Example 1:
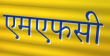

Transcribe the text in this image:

एमएफसी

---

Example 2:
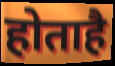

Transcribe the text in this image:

होताहै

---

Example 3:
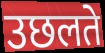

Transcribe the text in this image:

उछलते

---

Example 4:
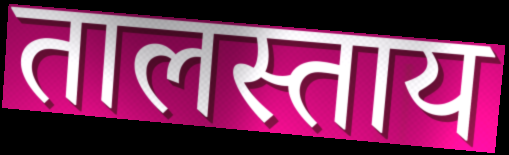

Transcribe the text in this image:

तालस्ताय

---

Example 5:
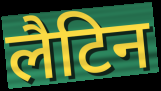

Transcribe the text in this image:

लैटिन